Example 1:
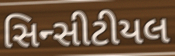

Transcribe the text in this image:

સિન્સીટીયલ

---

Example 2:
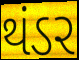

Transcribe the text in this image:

થંડર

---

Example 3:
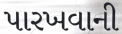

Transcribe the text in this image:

પારખવાની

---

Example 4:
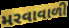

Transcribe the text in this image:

મરવાવાળી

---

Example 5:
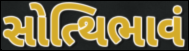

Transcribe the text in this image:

સોત્થિભાવં